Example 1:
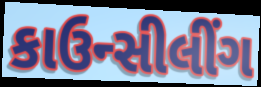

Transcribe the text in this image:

કાઉન્સીલીંગ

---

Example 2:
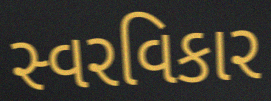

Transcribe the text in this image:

સ્વરવિકાર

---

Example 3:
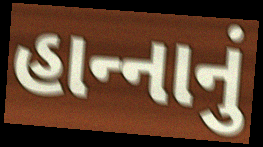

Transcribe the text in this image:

હાન્‍નાનું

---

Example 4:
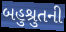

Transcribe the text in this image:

બહુશ્રુતની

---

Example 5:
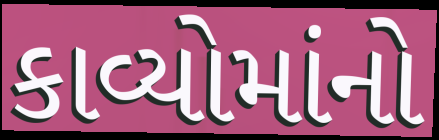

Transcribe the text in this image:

કાવ્યોમાંનો